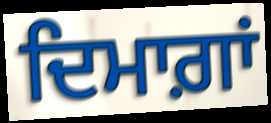
ਦਿਮਾਗ਼ਾਂ